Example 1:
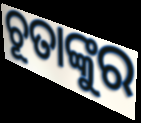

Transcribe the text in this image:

ଚୂତାଙ୍କୁର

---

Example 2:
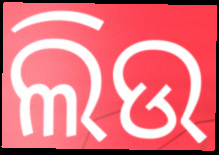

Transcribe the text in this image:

ଲିଉ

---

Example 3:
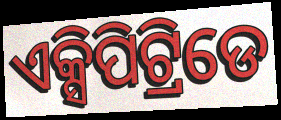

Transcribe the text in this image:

ଏକ୍ସିପିଟ୍ରିଡେ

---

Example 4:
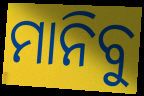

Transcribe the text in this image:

ମାନିବୁ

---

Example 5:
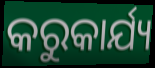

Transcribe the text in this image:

କରୁକାର୍ଯ୍ୟ